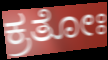
ಕ್ರತೋಃ